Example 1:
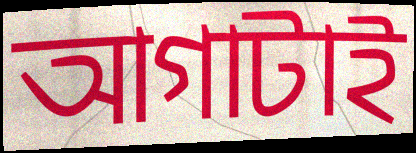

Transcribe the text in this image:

আগাটাই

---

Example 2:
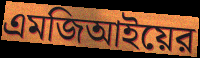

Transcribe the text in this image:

এমজিআইয়ের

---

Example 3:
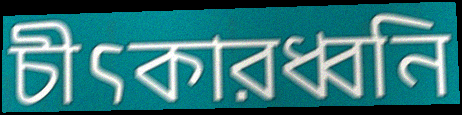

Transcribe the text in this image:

চীৎকারধ্বনি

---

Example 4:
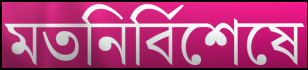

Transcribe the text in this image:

মতনির্বিশেষে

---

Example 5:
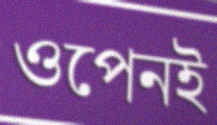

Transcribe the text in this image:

ওপেনই